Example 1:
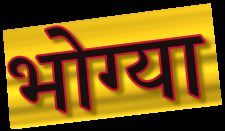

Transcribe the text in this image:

भोग्या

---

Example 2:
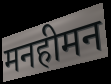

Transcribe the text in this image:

मनहीमन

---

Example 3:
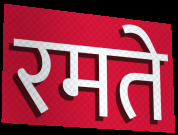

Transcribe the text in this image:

रमते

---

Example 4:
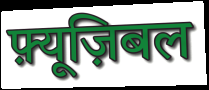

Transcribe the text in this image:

फ़्यूज़िबल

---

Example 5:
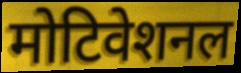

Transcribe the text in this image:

मोटिवेशनल